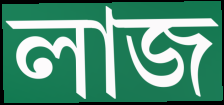
লাজ